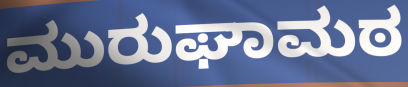
ಮುರುಘಾಮಠ